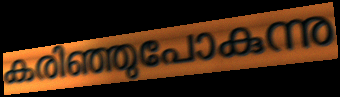
കരിഞ്ഞുപോകുന്നു